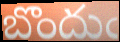
బొందుఁ